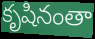
కృషినంతా